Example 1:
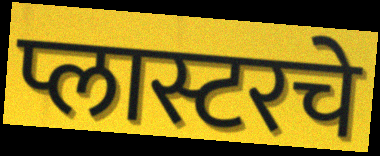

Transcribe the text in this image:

प्लास्टरचे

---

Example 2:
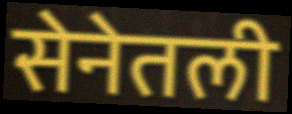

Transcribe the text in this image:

सेनेतली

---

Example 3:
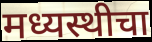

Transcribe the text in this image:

मध्यस्थीचा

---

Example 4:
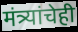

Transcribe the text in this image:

मंत्र्यांचेही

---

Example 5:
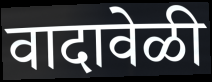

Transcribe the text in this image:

वादावेळी